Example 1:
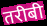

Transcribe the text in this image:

तरीबी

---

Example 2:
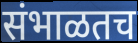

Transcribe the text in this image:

संभाळतच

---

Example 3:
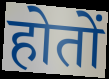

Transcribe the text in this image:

होतों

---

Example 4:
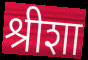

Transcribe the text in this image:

श्रीशा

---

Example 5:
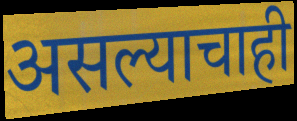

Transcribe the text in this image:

असल्याचाही